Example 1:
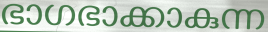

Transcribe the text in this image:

ഭാഗഭാക്കാകുന്ന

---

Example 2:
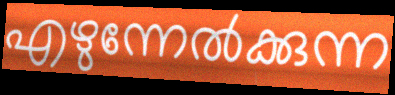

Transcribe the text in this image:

എഴുന്നേൽക്കുന്ന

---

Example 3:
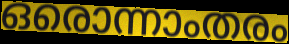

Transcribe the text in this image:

ഒരൊന്നാംതരം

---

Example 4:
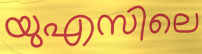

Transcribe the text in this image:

യുഎസിലെ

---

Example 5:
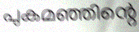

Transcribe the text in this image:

പുകമഞ്ഞിന്റെ